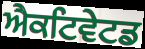
ਐਕਟਿਵੇਟਡ